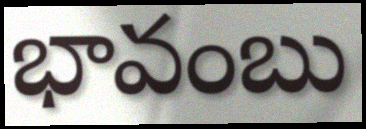
భావంబు